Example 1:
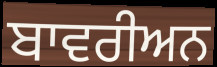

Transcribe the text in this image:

ਬਾਵਰੀਅਨ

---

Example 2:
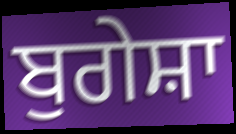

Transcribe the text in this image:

ਬੁਗੇਸ਼ਾ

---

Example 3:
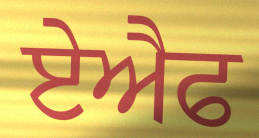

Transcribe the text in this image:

ਏਐਫ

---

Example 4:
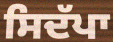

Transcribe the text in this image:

ਸਿਦੱਪਾ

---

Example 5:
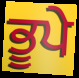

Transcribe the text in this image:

ਭੂਪੇ